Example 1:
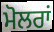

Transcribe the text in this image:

ਮੋਲਰਾਂ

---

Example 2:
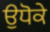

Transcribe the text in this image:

ਉਧੋਕੇ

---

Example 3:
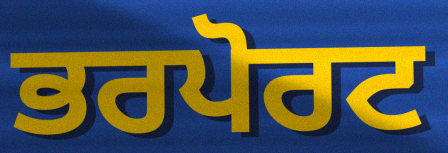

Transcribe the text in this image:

ਭਰਪੋਰਟ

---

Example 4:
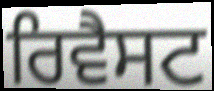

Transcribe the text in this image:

ਰਿਵੈਸਟ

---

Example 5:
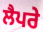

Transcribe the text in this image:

ਲੈਪਰੇ